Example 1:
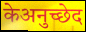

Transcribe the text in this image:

केअनुच्छेद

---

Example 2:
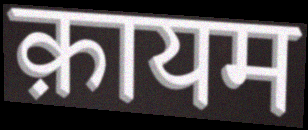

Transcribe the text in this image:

क़ायम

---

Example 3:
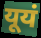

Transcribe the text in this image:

यूयं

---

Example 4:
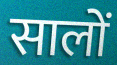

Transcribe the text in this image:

सालों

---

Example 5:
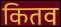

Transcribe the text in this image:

कितव